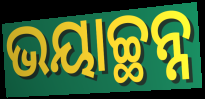
ଭୟାଚ୍ଛନ୍ନ